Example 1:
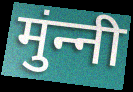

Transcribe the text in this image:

मुंन्नी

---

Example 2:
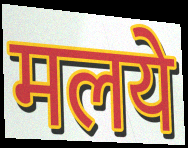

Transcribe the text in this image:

मलये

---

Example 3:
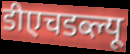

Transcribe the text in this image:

डीएचडब्ल्यू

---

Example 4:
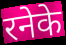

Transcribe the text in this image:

रनेके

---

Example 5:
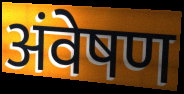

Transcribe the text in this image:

अंवेषण